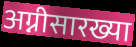
अग्नीसारख्या